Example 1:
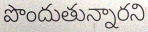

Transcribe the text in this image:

పొందుతున్నారని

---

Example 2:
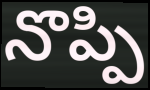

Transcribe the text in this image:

నొప్పి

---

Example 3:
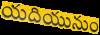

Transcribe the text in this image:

యదియునుం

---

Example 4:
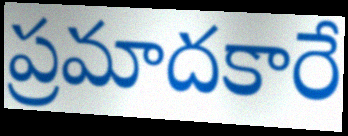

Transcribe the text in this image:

ప్రమాదకారే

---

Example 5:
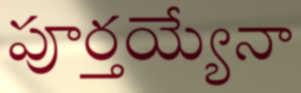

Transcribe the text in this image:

పూర్తయ్యేనా